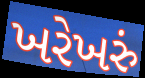
ખરેખરું